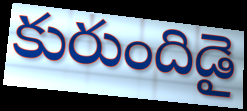
కురుందిడై